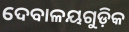
ଦେବାଳୟଗୁଡ଼ିକ